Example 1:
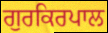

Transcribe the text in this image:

ਗੁਰਕਿਰਪਾਲ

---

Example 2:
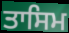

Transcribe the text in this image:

ਤਾਸਿਮ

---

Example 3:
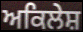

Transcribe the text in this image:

ਅਕਿਲੇਸ਼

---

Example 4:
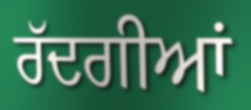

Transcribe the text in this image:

ਰੱਦਗੀਆਂ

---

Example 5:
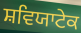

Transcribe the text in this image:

ਸ਼ਵਿਯਾਟੇਕ